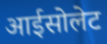
आईसोलेट